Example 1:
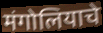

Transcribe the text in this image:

मंगोलियाचे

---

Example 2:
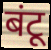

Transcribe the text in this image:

बंटू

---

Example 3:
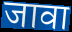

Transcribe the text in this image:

जावा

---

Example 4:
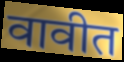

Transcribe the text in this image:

वावीत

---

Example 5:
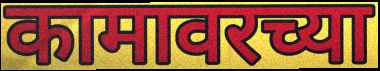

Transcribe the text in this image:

कामावरच्या